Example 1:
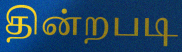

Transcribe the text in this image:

தின்றபடி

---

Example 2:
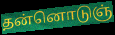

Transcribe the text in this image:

தன்னொடுஞ்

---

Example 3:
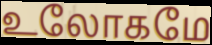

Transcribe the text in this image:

உலோகமே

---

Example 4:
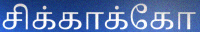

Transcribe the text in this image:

சிக்காக்கோ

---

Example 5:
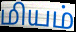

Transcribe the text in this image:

மியம்